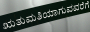
ಋತುಮತಿಯಾಗುವವರೆಗೆ